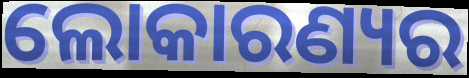
ଲୋକାରଣ୍ୟର